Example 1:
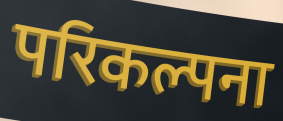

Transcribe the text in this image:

परिकल्पना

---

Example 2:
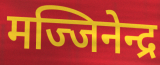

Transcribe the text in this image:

मज्जिनेन्द्र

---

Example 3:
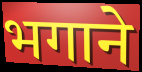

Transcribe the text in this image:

भगाने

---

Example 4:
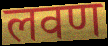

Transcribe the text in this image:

लवण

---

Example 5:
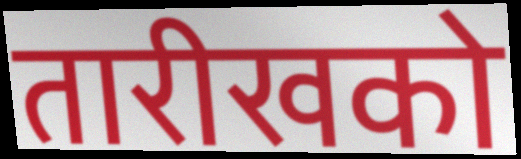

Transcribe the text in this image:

तारीखको